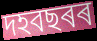
দহবছৰৰ